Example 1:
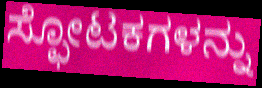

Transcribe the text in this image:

ಸ್ಫೋಟಕಗಳನ್ನು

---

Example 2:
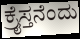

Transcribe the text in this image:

ಕ್ರೈಸ್ತನೆಂದು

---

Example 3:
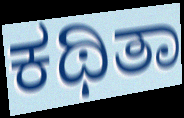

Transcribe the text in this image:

ಕಥಿತಾ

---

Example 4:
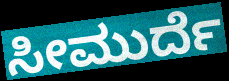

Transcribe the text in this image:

ಸೀಮುರ್ದೆ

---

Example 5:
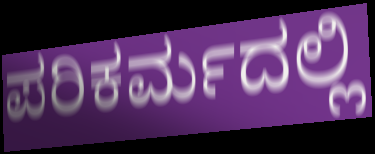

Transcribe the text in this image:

ಪರಿಕರ್ಮದಲ್ಲಿ